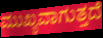
ಮುಖ್ಯವಾಗುತ್ತದೆ